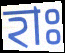
হাঃ